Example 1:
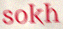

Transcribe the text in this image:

sokh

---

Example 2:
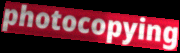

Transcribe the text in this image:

photocopying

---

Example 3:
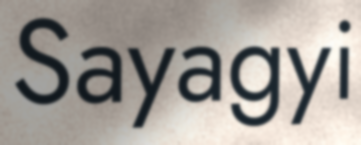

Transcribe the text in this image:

Sayagyi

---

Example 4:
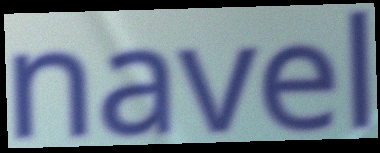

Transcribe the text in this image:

navel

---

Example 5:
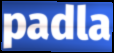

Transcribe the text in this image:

padla